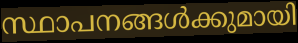
സ്ഥാപനങ്ങൾക്കുമായി